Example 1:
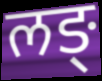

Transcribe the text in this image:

लङ्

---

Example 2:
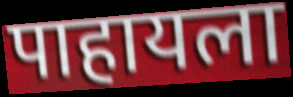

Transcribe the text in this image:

पाहायला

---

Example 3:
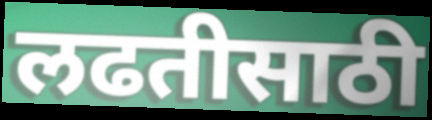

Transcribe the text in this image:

लढतीसाठी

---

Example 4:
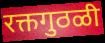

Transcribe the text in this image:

रक्तगुठळी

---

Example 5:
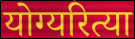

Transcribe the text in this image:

योग्यरित्या